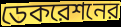
ডেকরেশনের